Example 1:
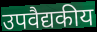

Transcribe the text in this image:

उपवैद्यकीय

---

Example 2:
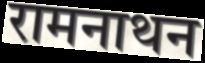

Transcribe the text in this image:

रामनाथन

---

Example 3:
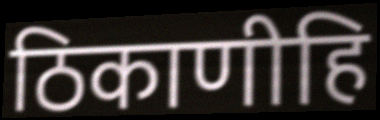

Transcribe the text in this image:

ठिकाणीहि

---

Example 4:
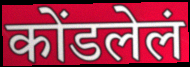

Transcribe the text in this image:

कोंडलेलं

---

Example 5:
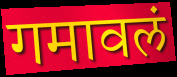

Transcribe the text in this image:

गमावलं